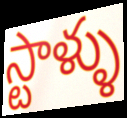
స్టాళ్ళు